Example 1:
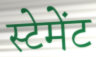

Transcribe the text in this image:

स्टेमेंट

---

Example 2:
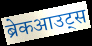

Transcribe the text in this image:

ब्रेकआउट्स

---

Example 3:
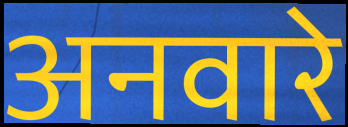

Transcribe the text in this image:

अनवारे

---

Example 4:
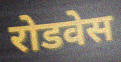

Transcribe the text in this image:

रोडवेस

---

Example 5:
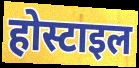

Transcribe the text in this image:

होस्टाइल